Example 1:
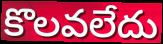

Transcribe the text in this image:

కొలవలేదు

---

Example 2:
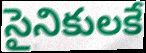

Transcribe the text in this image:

సైనికులకే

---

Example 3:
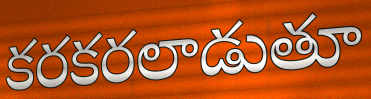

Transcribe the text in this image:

కరకరలాడుతూ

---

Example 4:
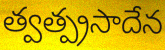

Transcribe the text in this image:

త్వత్ప్రసాదేన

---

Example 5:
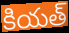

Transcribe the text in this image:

కియత్